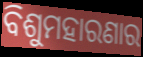
ବିଶୁମହାରଣାର